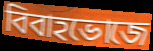
বিবাহভোজে